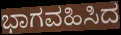
ಭಾಗವಹಿಸಿದ